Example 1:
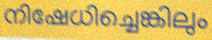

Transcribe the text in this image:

നിഷേധിച്ചെങ്കിലും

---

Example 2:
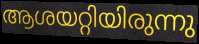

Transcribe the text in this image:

ആശയറ്റിയിരുന്നു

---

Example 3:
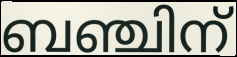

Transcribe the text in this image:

ബഞ്ചിന്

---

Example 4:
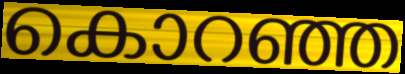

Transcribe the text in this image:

കൊറഞ്ഞ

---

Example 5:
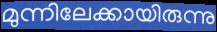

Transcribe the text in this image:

മുന്നിലേക്കായിരുന്നു